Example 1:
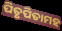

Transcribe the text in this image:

ପିତୃପିତାମହ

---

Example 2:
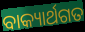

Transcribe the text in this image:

ବାକ୍ୟାର୍ଥଗତ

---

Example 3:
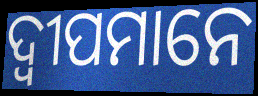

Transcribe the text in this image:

ଦ୍ୱୀପମାନେ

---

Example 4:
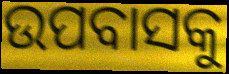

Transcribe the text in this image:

ଉପବାସକୁ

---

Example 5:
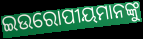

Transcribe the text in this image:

ଇଉରୋପୀୟମାନଙ୍କୁ